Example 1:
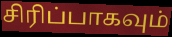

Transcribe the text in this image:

சிரிப்பாகவும்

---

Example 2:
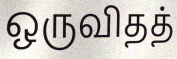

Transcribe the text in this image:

ஒருவிதத்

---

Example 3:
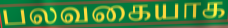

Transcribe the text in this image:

பலவகையாக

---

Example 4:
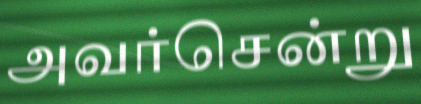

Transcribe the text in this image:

அவர்சென்று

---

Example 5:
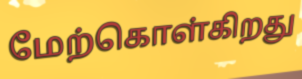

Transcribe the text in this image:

மேற்கொள்கிறது